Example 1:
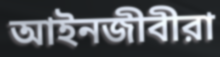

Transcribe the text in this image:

আইনজীবীরা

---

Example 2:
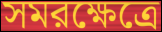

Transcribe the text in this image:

সমরক্ষেত্রে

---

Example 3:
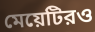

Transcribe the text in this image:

মেয়েটিরও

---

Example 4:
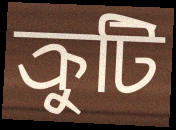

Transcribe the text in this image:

ক্রুটি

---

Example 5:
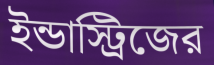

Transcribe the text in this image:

ইন্ডাস্ট্রিজের